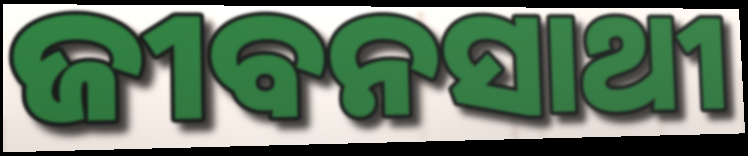
ଜୀବନସାଥୀ